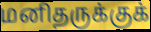
மனிதருக்குக்